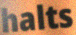
halts